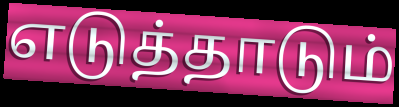
எடுத்தாடும்